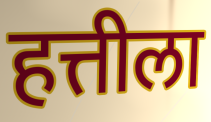
हत्तीला